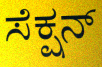
ಸೆಕ್ಷನ್